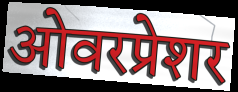
ओवरप्रेशर